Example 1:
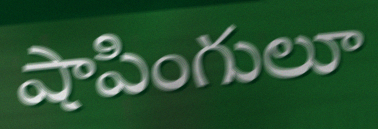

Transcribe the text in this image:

షాపింగులూ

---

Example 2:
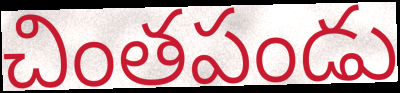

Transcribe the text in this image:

చింతపండు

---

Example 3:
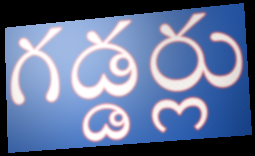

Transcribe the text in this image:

గడ్డర్లు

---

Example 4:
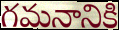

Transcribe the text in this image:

గమనానికి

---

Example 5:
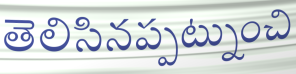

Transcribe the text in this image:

తెలిసినప్పట్నుంచి